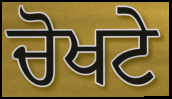
ਚੋਖਟੇ